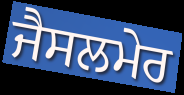
ਜੈਸਲਮੇਰ